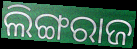
ଲିଙ୍ଗରାଜ